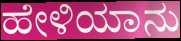
ಹೇಳಿಯಾನು